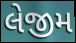
લેજીમ